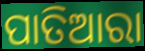
ପାତିଆରା